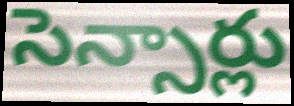
సెన్సార్లు